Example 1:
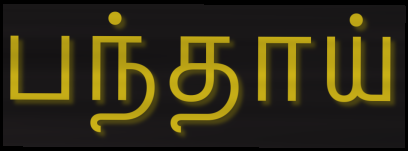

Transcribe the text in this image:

பந்தாய்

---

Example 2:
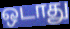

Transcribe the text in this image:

ஒடாது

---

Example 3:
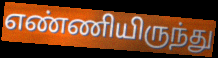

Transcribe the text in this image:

எண்ணியிருந்து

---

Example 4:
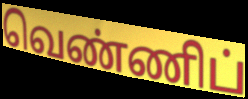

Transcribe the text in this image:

வெண்ணிப்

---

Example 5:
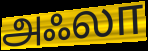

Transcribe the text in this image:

அஃலா